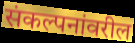
संकल्पनांवरील